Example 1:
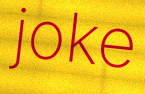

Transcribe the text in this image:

joke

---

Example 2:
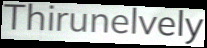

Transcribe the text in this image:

Thirunelvely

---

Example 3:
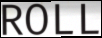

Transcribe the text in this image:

ROLL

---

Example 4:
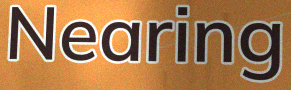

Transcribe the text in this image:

Nearing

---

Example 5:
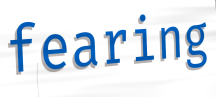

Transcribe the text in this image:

fearing